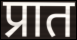
प्रात